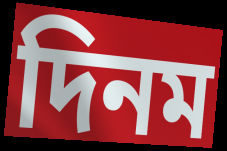
দিনম